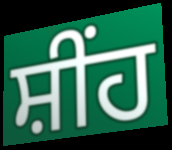
ਸ਼ੀਂਹ